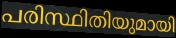
പരിസ്ഥിതിയുമായി